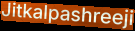
Jitkalpashreeji